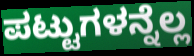
ಪಟ್ಟುಗಳನ್ನೆಲ್ಲ